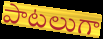
పాటలుగా